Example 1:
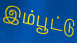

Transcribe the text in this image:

இம்பூட்டு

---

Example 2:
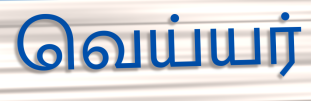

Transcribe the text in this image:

வெய்யர்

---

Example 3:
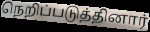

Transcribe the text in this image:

நெறிப்படுத்தினார்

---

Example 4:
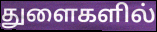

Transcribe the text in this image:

துளைகளில்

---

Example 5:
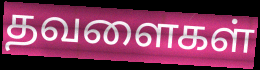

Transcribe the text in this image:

தவளைகள்